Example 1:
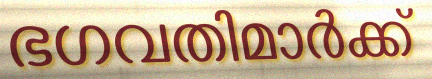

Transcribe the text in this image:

ഭഗവതിമാർക്ക്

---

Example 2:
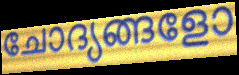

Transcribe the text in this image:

ചോദ്യങ്ങളോ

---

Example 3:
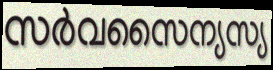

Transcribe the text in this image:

സർവസൈന്യസ്യ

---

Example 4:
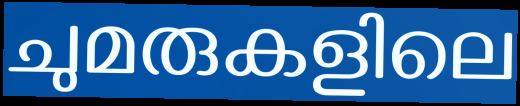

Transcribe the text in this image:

ചുമരുകളിലെ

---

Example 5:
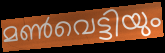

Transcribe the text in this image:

മൺവെട്ടിയും